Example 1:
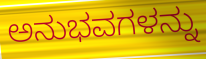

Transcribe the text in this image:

ಅನುಭವಗಳನ್ನು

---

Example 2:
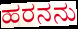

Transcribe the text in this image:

ಹರನನು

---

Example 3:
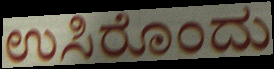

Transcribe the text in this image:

ಉಸಿರೊಂದು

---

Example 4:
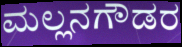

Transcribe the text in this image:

ಮಲ್ಲನಗೌಡರ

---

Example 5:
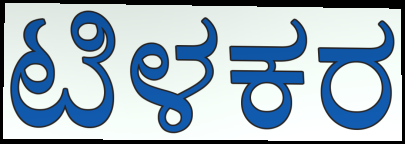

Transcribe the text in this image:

ಟಿಳಕರ